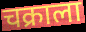
चक्राला